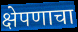
क्षेपणाचा